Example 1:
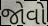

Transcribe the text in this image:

જોવો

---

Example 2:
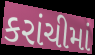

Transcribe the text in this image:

કરાંચીમાં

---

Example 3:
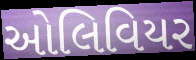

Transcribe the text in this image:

ઓલિવિયર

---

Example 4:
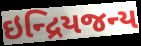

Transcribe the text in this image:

ઇન્દ્રિયજન્ય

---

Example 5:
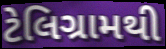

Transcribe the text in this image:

ટેલિગ્રામથી